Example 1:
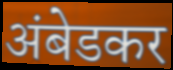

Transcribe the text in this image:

अंबेडकर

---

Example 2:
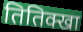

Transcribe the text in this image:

तितिक्खा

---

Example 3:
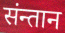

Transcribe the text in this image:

संन्तान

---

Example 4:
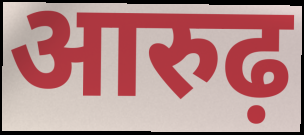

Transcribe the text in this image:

आरुढ़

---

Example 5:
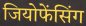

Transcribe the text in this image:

जियोफेंसिंग